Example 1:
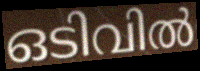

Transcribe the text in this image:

ഒടിവിൽ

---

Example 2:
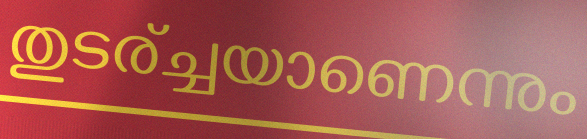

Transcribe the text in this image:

തുടര്ച്ചയാണെന്നും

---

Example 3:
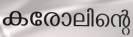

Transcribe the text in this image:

കരോലിന്റെ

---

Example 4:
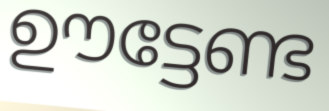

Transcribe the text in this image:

ഊട്ടേണ്ട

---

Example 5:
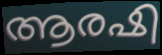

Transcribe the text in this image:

ആരഷി